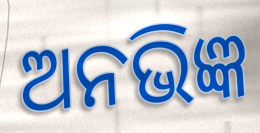
ଅନଭିଜ୍ଞ